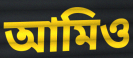
আমিও